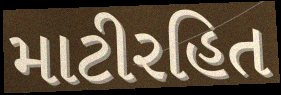
માટીરહિત